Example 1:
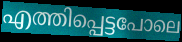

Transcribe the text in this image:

എത്തിപ്പെട്ടപോലെ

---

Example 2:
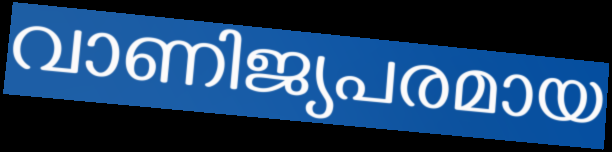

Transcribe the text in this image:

വാണിജ്യപരമായ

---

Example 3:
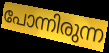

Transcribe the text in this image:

പോന്നിരുന്ന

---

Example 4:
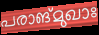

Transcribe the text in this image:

പരാങ്മുഖാഃ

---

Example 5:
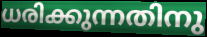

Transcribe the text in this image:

ധരിക്കുന്നതിനു